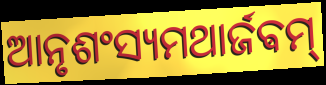
ଆନୃଶଂସ୍ୟମଥାର୍ଜଵମ୍